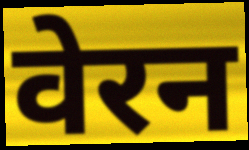
वेरन